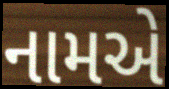
નામએ